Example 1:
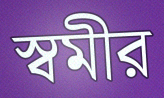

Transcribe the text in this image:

স্বমীর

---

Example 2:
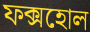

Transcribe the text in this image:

ফক্সহোল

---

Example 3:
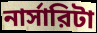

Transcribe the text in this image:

নার্সারিটা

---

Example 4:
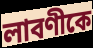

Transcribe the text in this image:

লাবণীকে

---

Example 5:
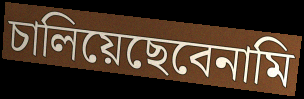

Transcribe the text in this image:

চালিয়েছেবেনামি